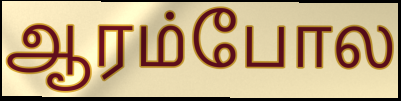
ஆரம்போல